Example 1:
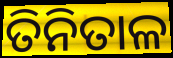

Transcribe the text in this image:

ତିନିତାଳ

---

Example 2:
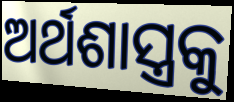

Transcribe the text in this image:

ଅର୍ଥଶାସ୍ତ୍ରକୁ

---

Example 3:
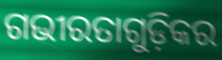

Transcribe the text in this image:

ଗଭୀରତାଗୁଡ଼ିକର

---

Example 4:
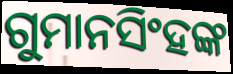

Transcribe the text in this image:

ଗୁମାନସିଂହଙ୍କ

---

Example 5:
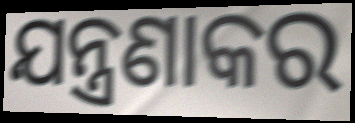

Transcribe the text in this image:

ଯନ୍ତ୍ରଣାକର